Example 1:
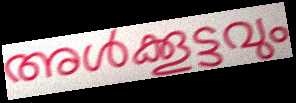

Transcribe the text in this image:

അൾക്കൂട്ടവും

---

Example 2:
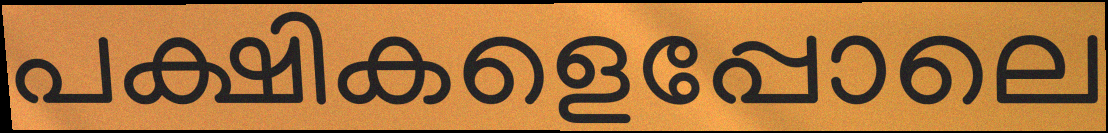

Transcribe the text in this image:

പക്ഷികളെപ്പോലെ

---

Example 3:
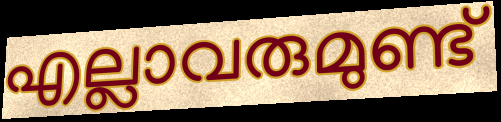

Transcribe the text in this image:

എല്ലാവരുമുണ്ട്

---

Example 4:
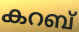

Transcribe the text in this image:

കറബ്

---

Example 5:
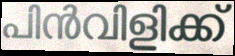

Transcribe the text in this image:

പിൻവിളിക്ക്